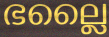
ഭല്ലൈ